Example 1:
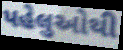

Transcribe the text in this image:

પહેલુઓથી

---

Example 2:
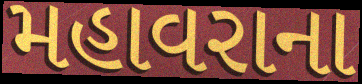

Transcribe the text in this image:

મહાવરાના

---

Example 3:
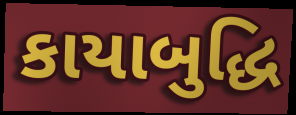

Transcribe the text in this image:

કાયાબુદ્ધિ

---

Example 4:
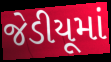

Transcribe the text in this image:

જેડીયૂમાં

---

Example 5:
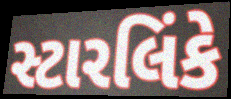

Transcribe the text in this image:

સ્ટારલિંકે